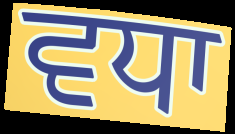
ਵਧਾ